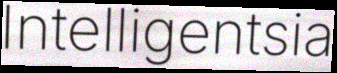
Intelligentsia